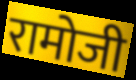
रामोजी